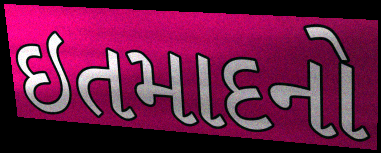
ઇતમાદનો